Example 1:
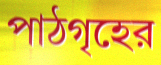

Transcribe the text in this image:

পাঠগৃহের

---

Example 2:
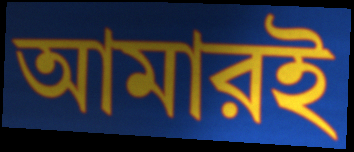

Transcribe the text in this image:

আমারই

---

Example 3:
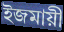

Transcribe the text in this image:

ইজমায়ী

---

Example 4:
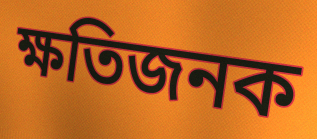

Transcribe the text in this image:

ক্ষতিজনক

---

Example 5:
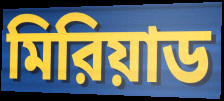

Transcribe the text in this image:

মিরিয়াড